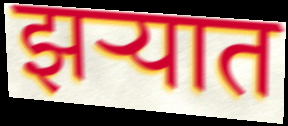
झर्‍यात